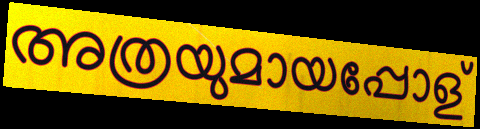
അത്രയുമായപ്പോള്